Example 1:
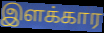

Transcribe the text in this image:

இளக்கார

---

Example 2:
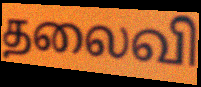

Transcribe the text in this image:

தலைவி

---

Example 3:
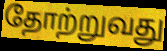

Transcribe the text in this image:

தோற்றுவது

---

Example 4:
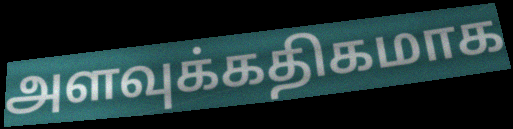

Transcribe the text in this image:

அளவுக்கதிகமாக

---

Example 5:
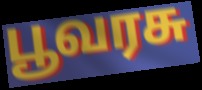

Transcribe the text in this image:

பூவரசு